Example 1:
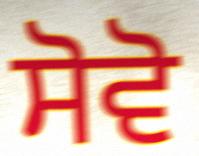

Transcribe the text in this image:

ਸੋਵੋ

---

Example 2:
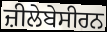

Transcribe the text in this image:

ਜ਼ੀਲੇਬੇਸੀਰਨ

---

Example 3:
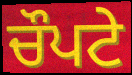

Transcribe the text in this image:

ਚੌਪਟੇ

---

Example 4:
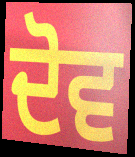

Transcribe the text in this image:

ਦੋਵ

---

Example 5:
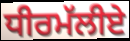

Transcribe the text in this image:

ਧੀਰਮੱਲੀਏ